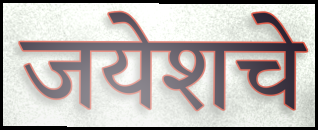
जयेशचे